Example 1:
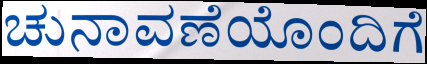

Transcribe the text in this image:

ಚುನಾವಣೆಯೊಂದಿಗೆ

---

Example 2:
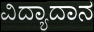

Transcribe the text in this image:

ವಿದ್ಯಾದಾನ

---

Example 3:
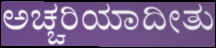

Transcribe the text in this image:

ಅಚ್ಚರಿಯಾದೀತು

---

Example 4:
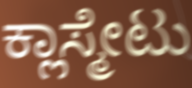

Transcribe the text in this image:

ಕ್ಲಾಸ್ಮೇಟು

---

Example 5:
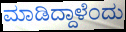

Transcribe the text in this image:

ಮಾಡಿದ್ದಾಳೆಂದು